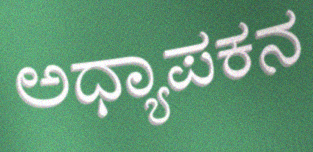
ಅಧ್ಯಾಪಕನ